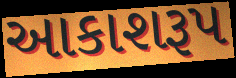
આકાશરૂપ